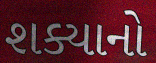
શક્યાનો